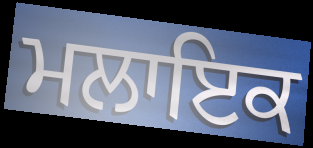
ਮਲਾਇਕ